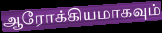
ஆரோக்கியமாகவும்